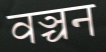
वञ्चन